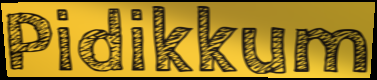
Pidikkum